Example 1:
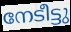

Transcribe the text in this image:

നേടീട്ടു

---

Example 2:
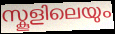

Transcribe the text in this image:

സ്കൂളിലെയും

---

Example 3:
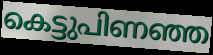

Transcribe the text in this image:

കെട്ടുപിണഞ്ഞ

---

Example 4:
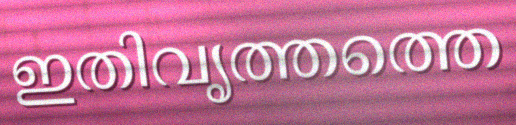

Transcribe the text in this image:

ഇതിവൃത്തത്തെ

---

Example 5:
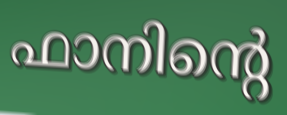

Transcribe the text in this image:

ഫാനിന്റെ